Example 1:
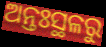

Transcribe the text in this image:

ଅନ୍ତଃସ୍ଥଳରୁ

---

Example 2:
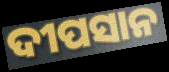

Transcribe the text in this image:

ଦୀପସାନ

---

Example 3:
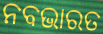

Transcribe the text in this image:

ନବଭାରତ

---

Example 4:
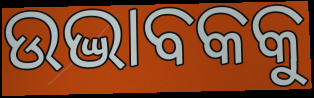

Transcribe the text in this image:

ଉଦ୍ଭାବକକୁ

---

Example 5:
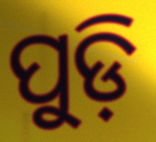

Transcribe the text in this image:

ପୁଡ଼ି